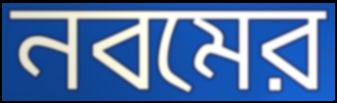
নবমের